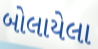
બોલાયેલા